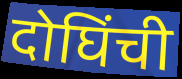
दोघिंची